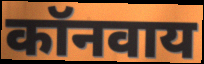
कॉनवाय